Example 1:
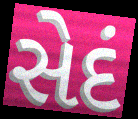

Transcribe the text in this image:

સેદં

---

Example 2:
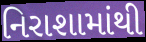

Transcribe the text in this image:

નિરાશામાંથી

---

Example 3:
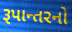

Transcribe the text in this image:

રૂપાન્તરનો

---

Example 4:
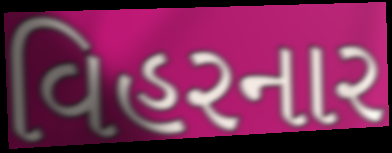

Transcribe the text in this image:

વિહરનાર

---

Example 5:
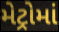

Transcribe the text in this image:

મેટ્રોમાં